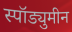
स्पॉड्युमीन